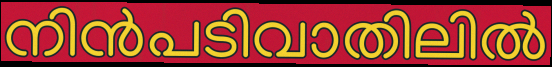
നിൻപടിവാതിലിൽ